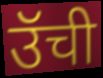
उॅची